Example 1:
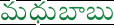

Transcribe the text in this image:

మధుబాబు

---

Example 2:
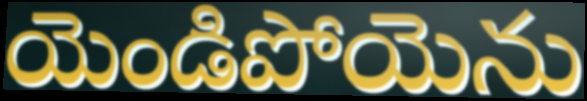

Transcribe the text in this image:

యెండిపోయెను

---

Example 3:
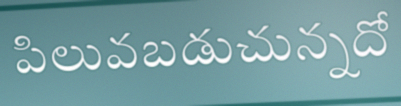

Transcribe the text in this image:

పిలువబడుచున్నదో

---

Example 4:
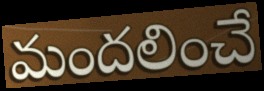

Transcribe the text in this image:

మందలించే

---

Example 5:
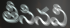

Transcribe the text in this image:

తీసినవీ